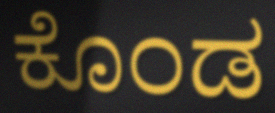
ಕೊಂಡ